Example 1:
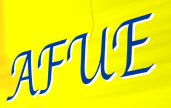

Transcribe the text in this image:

AFUE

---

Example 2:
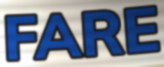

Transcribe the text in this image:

FARE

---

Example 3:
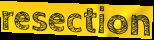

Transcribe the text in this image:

resection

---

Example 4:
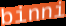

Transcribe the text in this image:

binni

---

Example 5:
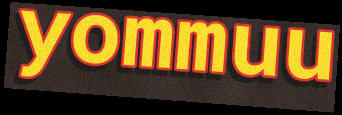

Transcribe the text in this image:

yommuu